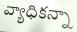
వ్యాధికన్నా